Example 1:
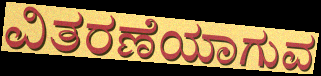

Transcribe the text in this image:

ವಿತರಣೆಯಾಗುವ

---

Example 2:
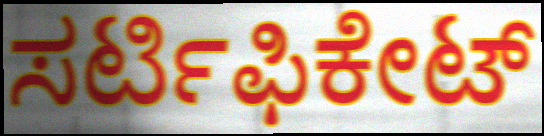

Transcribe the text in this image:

ಸರ್ಟಿಫಿಕೇಟ್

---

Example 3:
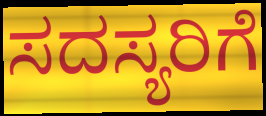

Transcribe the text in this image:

ಸದಸ್ಯರಿಗೆ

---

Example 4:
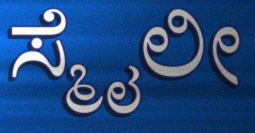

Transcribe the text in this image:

ಸ್ಮೈಲೀ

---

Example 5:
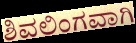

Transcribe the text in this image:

ಶಿವಲಿಂಗವಾಗಿ